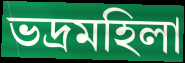
ভদ্রমহিলা